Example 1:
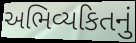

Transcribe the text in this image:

અભિવ્યકિતનું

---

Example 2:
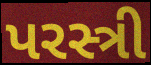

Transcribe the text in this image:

પરસ્ત્રી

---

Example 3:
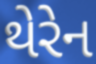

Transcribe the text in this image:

થેરેન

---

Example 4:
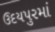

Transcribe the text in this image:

ઉદયપુરમાં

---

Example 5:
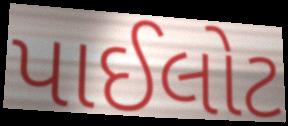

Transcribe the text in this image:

પાઈલોટ